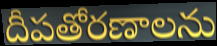
దీపతోరణాలను